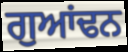
ਗੁਆਂਢਨ